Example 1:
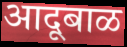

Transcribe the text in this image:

आदूबाळ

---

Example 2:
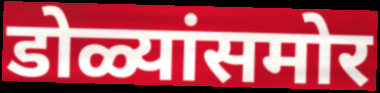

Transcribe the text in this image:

डोळ्यांसमोर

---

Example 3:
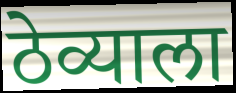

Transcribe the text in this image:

ठेव्याला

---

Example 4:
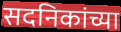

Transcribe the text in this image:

सदनिकांच्या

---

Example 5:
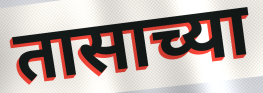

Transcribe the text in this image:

तासाच्या